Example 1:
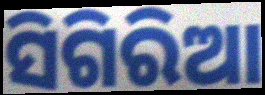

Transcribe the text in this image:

ସିଗିରିଆ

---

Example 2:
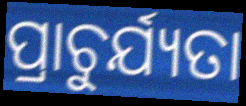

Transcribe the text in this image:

ପ୍ରାଚୁର୍ଯ୍ୟତା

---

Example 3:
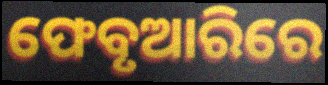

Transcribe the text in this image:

ଫେବୃଆରିରେ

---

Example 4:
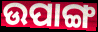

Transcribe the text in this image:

ଉପାଙ୍ଗ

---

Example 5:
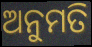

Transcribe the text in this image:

ଅନୁମତି